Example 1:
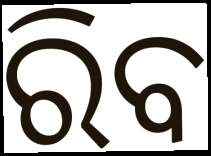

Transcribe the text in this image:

ରିବ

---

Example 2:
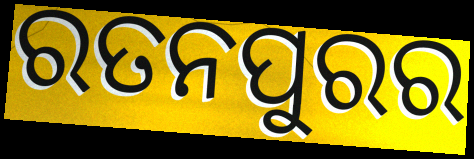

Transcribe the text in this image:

ରତନପୁରର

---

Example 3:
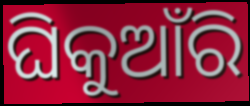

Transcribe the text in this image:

ଘିକୁଆଁରି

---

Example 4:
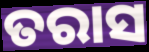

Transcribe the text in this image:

ତରାସ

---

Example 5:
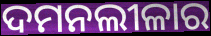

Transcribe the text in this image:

ଦମନଲୀଳାର